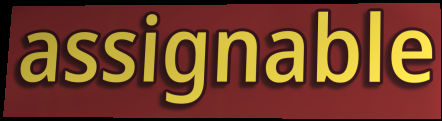
assignable